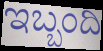
ಇಬ್ಬಂದಿ